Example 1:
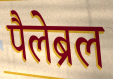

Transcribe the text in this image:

पैलेब्रल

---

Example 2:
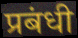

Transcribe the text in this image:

प्रबंधी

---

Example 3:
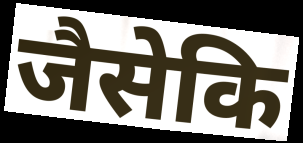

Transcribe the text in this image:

जैसेकि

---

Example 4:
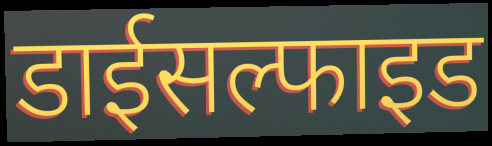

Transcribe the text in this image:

डाईसल्फाइड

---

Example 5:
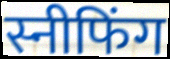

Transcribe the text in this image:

स्नीफिंग